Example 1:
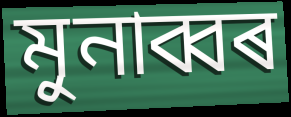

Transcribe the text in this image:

মুনাব্বৰ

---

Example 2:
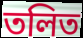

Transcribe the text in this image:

তলিত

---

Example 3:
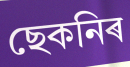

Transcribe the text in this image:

ছেকনিৰ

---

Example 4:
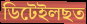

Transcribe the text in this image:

ডিটেইলছত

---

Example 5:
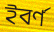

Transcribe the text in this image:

ইবৰ্ণ